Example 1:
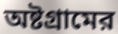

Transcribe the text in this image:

অষ্টগ্রামের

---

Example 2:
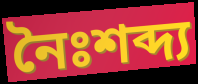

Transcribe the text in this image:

নৈঃশব্দ্য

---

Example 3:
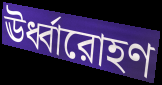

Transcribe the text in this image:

ঊর্ধ্বারোহণ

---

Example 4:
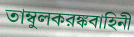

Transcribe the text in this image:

তাম্বুলকরঙ্কবাহিনী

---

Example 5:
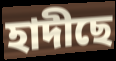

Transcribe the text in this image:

হাদীছে